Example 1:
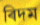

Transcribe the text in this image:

ৰিদম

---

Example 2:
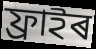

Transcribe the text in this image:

ফ্ৰাইৰ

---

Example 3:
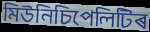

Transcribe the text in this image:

মিউনিচিপেলিটিৰ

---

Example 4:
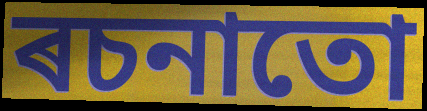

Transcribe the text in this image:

ৰচনাতো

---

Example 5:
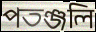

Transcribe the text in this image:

পতঞ্জলি